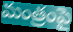
మంత్రంపై